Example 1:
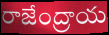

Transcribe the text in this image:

రాజేంద్రాయ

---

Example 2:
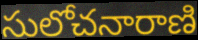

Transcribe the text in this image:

సులోచనారాణి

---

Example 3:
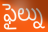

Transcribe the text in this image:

ఫైల్ను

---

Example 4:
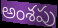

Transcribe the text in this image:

అంశపు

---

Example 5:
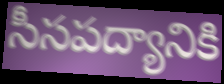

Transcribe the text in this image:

సీసపద్యానికి